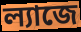
ল্যাজে